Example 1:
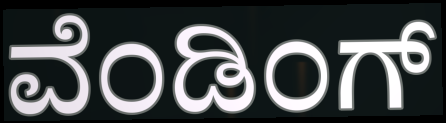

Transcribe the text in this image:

ವೆಂಡಿಂಗ್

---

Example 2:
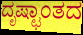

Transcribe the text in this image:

ದೃಷ್ಟಾಂತದ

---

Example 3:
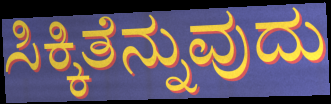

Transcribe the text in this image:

ಸಿಕ್ಕಿತೆನ್ನುವುದು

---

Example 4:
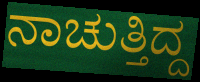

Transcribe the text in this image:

ನಾಚುತ್ತಿದ್ದ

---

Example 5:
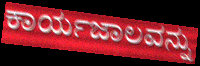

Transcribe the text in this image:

ಕಾರ್ಯಜಾಲವನ್ನು